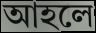
আহলে